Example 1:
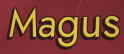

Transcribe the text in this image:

Magus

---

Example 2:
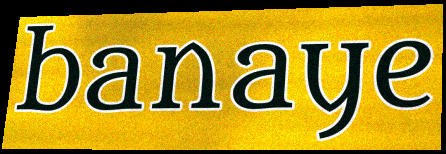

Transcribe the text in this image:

banaye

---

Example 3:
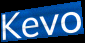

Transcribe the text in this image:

Kevo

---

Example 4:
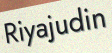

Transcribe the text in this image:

Riyajudin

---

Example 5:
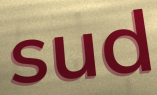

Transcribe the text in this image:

sud